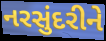
નરસુંદરીને